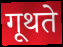
गूथते